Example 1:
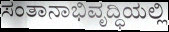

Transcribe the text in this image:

ಸಂತಾನಾಭಿವೃದ್ಧಿಯಲ್ಲಿ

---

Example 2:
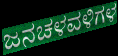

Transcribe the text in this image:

ಜನಚಳವಳಿಗಳ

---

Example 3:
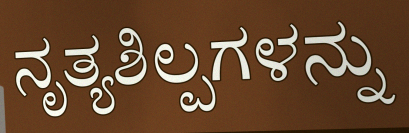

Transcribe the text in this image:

ನೃತ್ಯಶಿಲ್ಪಗಳನ್ನು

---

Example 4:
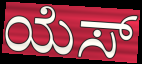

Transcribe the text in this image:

ಯೆಸ್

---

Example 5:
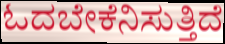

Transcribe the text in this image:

ಓದಬೇಕೆನಿಸುತ್ತಿದೆ